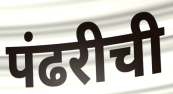
पंढरीची